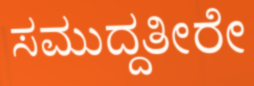
ಸಮುದ್ದತೀರೇ